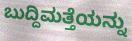
ಬುದ್ದಿಮತ್ತೆಯನ್ನು